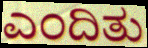
ಎಂದಿತು